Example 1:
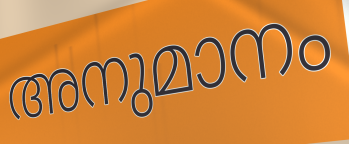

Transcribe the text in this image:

അനുമാനം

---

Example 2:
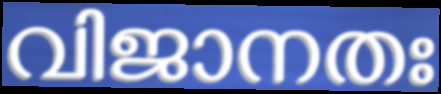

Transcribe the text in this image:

വിജാനതഃ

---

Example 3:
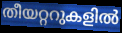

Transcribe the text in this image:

തീയറ്ററുകളിൽ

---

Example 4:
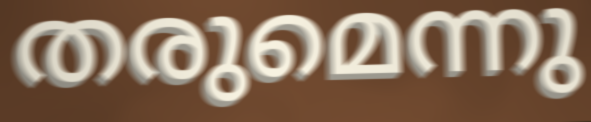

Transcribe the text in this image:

തരുമെന്നു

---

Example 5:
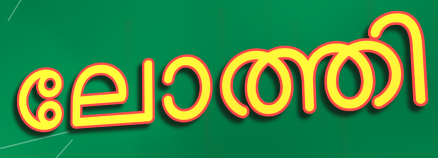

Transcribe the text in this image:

ലോത്തി